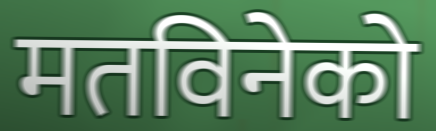
मतविनेको